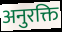
अनुरक्ति